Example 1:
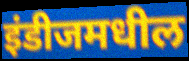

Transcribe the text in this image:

इंडीजमधील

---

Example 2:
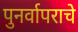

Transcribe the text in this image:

पुनर्वापराचे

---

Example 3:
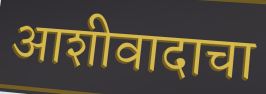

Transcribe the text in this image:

आशीवादाचा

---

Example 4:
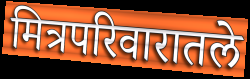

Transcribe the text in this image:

मित्रपरिवारातले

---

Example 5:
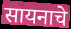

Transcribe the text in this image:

सायनाचे